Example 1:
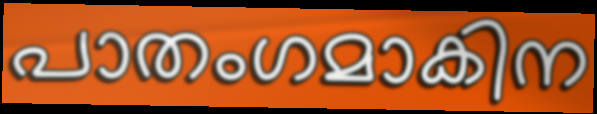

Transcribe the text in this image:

പാതംഗമാകിന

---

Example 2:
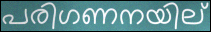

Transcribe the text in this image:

പരിഗണനയില്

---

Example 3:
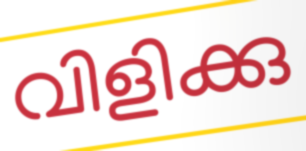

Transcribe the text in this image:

വിളിക്കു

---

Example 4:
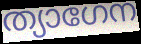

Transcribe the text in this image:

ത്യാഗേന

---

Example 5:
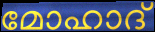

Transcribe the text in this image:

മോഹാദ്